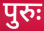
पुरुः